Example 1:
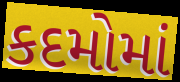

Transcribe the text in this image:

કદમોમાં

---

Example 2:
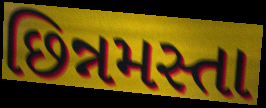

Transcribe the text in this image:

છિન્નમસ્તા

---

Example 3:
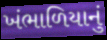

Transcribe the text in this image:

ખંભાળિયાનું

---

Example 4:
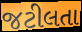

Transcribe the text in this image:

જટીલતા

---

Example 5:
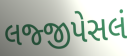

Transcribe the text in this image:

લજ્જીપેસલં